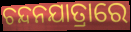
ଚନ୍ଦନଯାତ୍ରାରେ